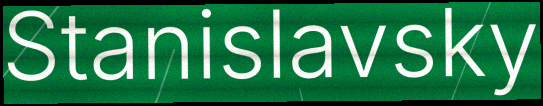
Stanislavsky